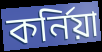
কর্নিয়া